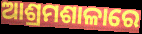
ଆଶ୍ରମଶାଳାରେ